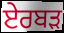
ਏਰਬੜ